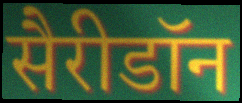
सैरीडॉन